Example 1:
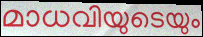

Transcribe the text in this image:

മാധവിയുടെയും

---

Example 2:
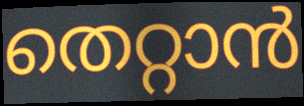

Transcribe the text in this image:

തെറ്റാൻ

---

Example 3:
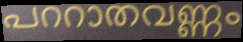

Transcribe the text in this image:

പററാതവണ്ണം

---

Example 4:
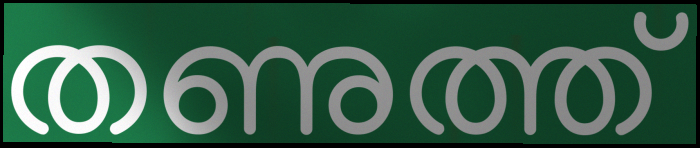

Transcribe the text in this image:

തണുത്ത്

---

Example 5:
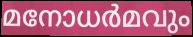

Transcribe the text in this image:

മനോധർമവും